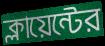
ক্লায়েন্টের